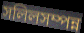
সলিলসম্পন্ন